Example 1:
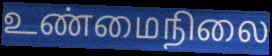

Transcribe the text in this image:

உண்மைநிலை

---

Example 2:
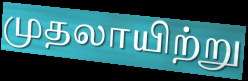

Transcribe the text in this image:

முதலாயிற்று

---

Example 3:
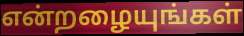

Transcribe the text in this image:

என்றழையுங்கள்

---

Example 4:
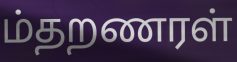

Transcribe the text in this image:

ம்தறணரள்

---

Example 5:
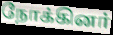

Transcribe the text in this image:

நோக்கினர்